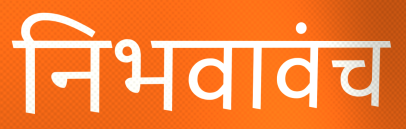
निभवावंच